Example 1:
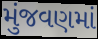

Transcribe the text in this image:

મુંજવણમાં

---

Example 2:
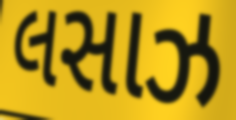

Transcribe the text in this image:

લસાઝ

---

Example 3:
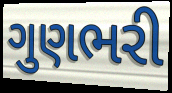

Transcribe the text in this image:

ગુણભરી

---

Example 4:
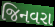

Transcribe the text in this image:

જિનવરા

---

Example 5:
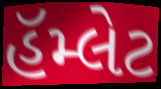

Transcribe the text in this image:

હૅમ્લેટ